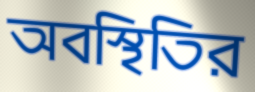
অবস্থিতির